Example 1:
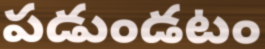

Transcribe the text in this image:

పడుండటం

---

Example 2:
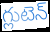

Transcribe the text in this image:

గ్లుటెన్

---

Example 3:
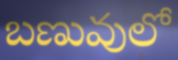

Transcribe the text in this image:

బణువులో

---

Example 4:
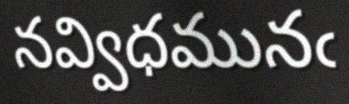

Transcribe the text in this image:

నవ్విధమునఁ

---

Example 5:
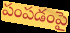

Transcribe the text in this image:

పంపడంపై